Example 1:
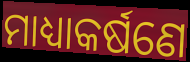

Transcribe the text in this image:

ମାଧ୍ୟାକର୍ଷଣେ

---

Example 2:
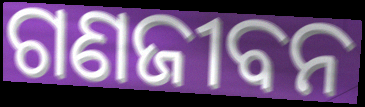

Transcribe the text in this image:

ଗଣଜୀବନ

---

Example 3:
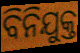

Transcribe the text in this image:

ବିନିଯୁକ୍ତ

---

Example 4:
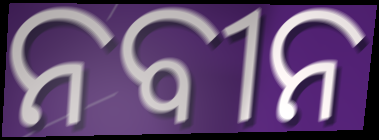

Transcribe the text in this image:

ନବୀନ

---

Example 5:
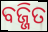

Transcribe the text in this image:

ବଜ୍ଜିତ